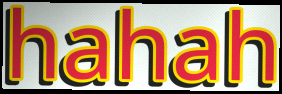
hahah